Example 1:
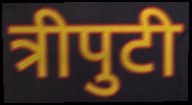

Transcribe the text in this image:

त्रीपुटी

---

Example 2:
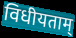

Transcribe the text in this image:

विधीयताम्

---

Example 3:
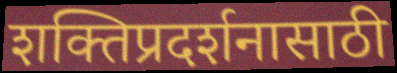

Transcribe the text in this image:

शक्तिप्रदर्शनासाठी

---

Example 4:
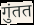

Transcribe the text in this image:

गुंतत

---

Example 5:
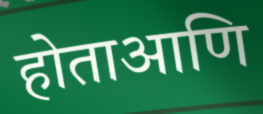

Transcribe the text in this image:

होताआणि